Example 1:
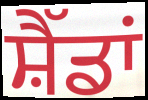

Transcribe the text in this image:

ਸ਼ੈੱਡਾਂ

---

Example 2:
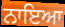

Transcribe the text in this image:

ਨਾਇਆ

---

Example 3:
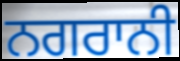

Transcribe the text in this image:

ਨਗਰਾਨੀ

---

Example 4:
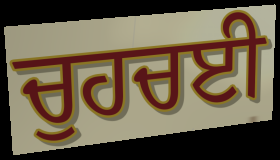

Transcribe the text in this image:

ਚੁਹਚਈ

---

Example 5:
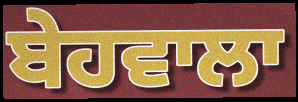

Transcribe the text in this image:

ਬੇਹਵਾਲਾ